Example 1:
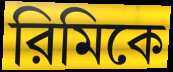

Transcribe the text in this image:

রিমিকে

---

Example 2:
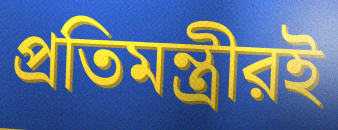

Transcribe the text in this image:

প্রতিমন্ত্রীরই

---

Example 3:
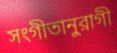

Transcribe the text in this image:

সংগীতানুরাগী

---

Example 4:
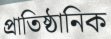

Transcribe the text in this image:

প্রাতিষ্ঠানিক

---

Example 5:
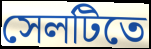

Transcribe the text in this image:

সেলটিতে